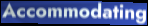
Accommodating